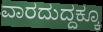
ವಾರದುದ್ದಕ್ಕೂ